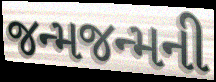
જન્મજન્મની